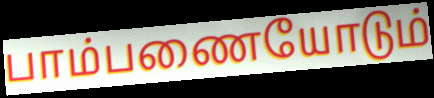
பாம்பணையோடும்